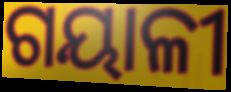
ଗୟାଳୀ